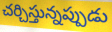
చర్చిస్తున్నప్పుడు